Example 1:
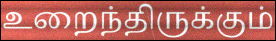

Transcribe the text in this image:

உறைந்திருக்கும்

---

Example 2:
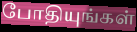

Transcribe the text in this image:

போதியுங்கள்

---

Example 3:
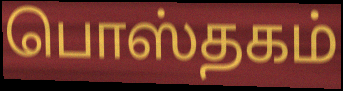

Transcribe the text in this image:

பொஸ்தகம்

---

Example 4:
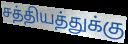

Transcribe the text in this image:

சத்தியத்துக்கு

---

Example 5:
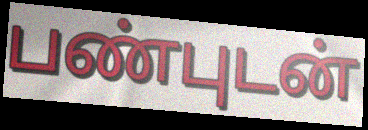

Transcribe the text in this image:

பண்புடன்